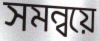
সমন্বয়ে